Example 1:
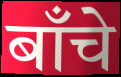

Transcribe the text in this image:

बाँचे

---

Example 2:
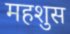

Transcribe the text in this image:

महशुस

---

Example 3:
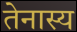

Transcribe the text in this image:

तेनास्य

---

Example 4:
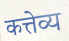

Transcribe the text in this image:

कत्तेव्य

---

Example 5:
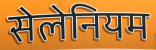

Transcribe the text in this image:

सेलेनियम